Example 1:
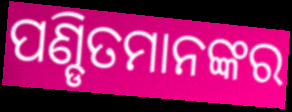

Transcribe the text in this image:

ପଣ୍ଡିତମାନଙ୍କର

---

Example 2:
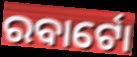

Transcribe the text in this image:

ରବାର୍ଟୋ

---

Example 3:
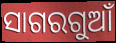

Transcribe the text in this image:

ସାଗରଗୁଆଁ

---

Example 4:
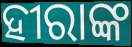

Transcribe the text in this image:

ହୀରାଙ୍କ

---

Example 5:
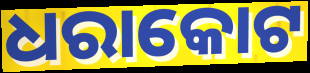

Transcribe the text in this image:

ଧରାକୋଟ